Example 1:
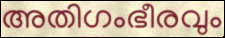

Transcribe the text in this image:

അതിഗംഭീരവും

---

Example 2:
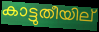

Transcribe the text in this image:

കാട്ടുതീയില്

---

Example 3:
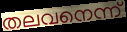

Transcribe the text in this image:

തലവനെന്ന്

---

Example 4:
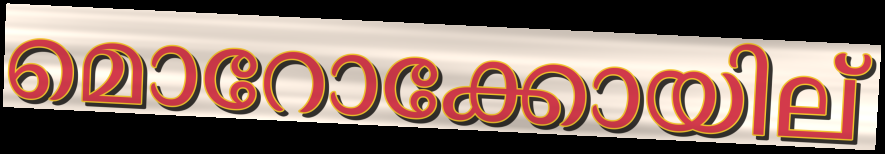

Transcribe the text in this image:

മൊറോക്കോയില്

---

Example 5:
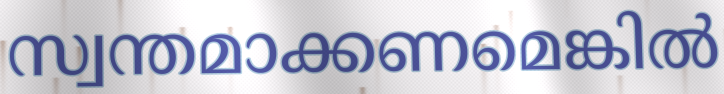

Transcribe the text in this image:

സ്വന്തമാക്കണമെങ്കിൽ